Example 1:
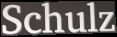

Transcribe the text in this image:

Schulz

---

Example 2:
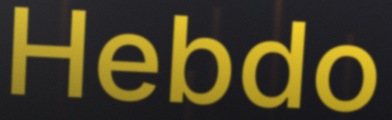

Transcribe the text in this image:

Hebdo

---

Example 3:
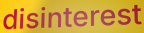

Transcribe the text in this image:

disinterest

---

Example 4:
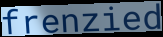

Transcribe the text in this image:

frenzied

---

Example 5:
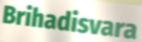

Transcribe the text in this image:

Brihadisvara